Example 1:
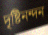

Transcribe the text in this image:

দৃষ্টিনন্দন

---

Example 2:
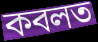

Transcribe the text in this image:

কবলত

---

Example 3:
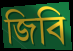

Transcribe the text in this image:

জিবি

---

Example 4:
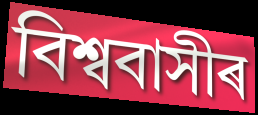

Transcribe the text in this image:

বিশ্ববাসীৰ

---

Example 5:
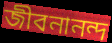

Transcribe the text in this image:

জীবনানন্দ